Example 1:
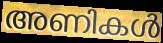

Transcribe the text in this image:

അണികൾ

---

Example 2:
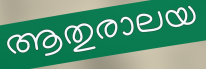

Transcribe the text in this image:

ആതുരാലയ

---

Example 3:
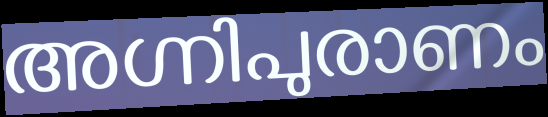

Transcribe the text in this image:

അഗ്നിപുരാണം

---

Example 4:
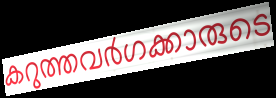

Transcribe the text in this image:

കറുത്തവർഗക്കാരുടെ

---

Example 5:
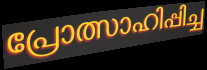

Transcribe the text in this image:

പ്രോത്സാഹിപ്പിച്ച